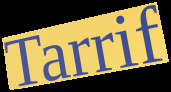
Tarrif